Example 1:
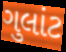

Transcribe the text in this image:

ગુલાંટ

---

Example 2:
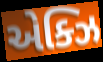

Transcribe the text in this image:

એક્ઝિ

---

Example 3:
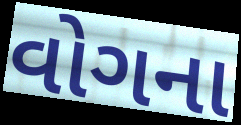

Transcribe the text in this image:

વોગના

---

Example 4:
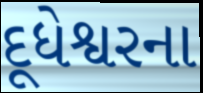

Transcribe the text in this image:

દૂધેશ્વરના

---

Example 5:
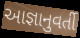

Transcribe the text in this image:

આજ્ઞાનુવર્તી